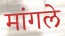
मांगले